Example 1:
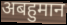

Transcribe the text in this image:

अबहुमान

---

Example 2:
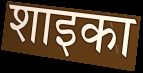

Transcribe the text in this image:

शाइका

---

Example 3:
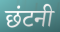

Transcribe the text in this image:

छंटनी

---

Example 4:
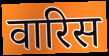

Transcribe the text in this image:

वारिस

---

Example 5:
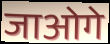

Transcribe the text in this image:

जाओगे